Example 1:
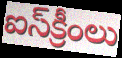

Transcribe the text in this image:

ఐస్‌క్రీంలు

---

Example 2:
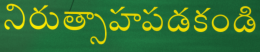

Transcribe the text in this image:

నిరుత్సాహపడకండి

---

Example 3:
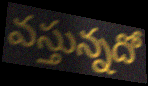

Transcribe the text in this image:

వస్తున్నదో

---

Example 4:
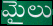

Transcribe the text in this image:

మైలు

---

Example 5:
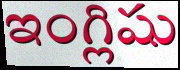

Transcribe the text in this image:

ఇంగ్లిషు